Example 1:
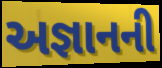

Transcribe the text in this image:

અજ્ઞાનની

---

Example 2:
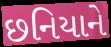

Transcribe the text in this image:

છનિયાને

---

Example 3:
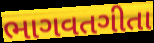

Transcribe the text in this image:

ભાગવતગીતા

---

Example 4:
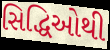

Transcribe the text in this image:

સિદ્ધિઓથી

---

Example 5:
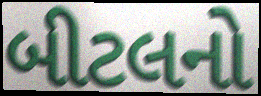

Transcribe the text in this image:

બીટલનો